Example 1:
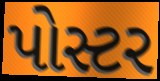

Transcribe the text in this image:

પોસ્ટર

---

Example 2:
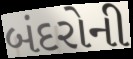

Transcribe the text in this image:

બંદરોની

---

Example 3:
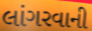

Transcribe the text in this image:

લાંગરવાની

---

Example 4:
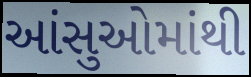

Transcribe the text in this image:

આંસુઓમાંથી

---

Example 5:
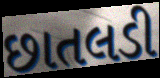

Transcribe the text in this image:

છાતલડી